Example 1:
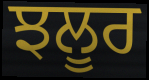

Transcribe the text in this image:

ਝਲੂਰ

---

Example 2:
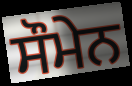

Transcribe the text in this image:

ਸੌਮੇਨ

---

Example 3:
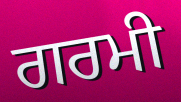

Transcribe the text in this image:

ਗਰਮੀ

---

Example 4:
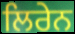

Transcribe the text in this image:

ਲਿਰੇਨ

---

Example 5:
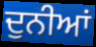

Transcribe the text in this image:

ਦੁਨੀਆਂ